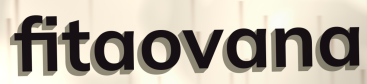
fitaovana